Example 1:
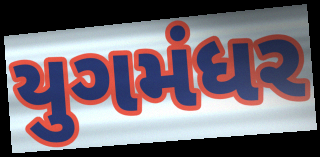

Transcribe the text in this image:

યુગમંધર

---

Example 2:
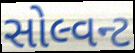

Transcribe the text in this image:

સોલ્વન્ટ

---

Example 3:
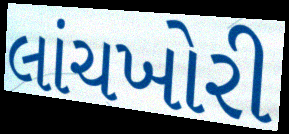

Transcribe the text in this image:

લાંચખોરી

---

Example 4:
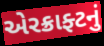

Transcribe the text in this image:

એરક્રાફ્ટનું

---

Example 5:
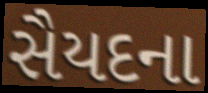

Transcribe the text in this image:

સૈયદના